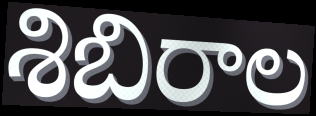
శిబిరాల